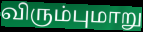
விரும்புமாறு